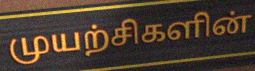
முயற்சிகளின்